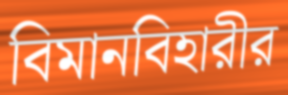
বিমানবিহারীর